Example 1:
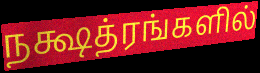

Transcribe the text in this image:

நக்ஷத்ரங்களில்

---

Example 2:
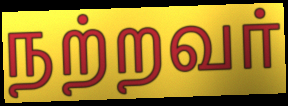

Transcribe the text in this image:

நற்றவர்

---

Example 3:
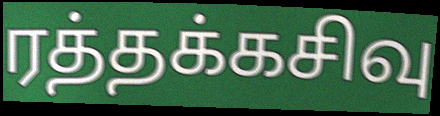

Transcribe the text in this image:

ரத்தக்கசிவு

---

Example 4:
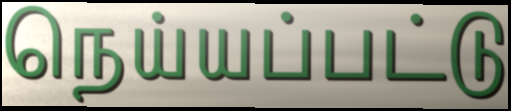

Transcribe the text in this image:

நெய்யப்பட்டு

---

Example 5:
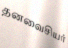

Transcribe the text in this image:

தனவைசியர்